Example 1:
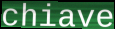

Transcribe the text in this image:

chiave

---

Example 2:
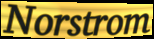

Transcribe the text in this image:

Norstrom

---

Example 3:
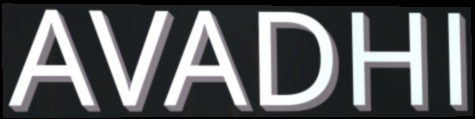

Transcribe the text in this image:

AVADHI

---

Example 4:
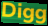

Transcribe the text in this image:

Digg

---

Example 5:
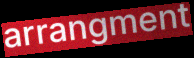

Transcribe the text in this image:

arrangment